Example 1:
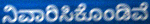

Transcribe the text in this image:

ನಿವಾರಿಸಿಕೊಂಡಿವೆ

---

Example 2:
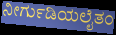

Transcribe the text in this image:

ನೀರ್ಗುಡಿಯಲೈತಂ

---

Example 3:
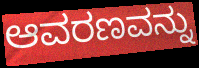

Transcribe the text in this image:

ಆವರಣವನ್ನು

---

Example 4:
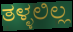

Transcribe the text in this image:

ತಳ್ಳಲಿಲ್ಲ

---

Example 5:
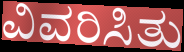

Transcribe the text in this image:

ವಿವರಿಸಿತು